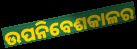
ଉପନିବେଶକାଳର